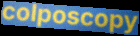
colposcopy